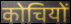
कोचियों